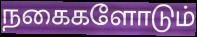
நகைகளோடும்